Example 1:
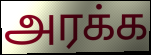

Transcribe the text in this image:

அரக்க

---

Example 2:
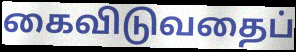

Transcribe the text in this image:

கைவிடுவதைப்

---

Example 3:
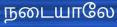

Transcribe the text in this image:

நடையாலே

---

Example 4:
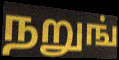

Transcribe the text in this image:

நறுங்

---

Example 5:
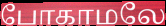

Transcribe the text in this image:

போகாமலே